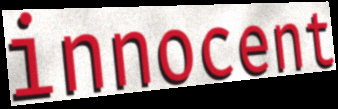
innocent